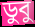
ডুবু